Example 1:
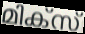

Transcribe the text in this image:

മിക്‌സ്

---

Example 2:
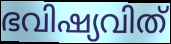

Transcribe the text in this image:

ഭവിഷ്യവിത്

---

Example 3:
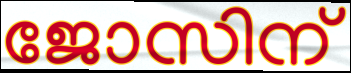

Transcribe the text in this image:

ജോസിന്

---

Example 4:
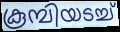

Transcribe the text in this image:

കൂമ്പിയടച്ച്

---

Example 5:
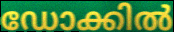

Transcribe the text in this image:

ഡോക്കിൽ